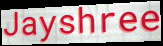
Jayshree